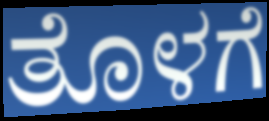
ತೊಳಗೆ